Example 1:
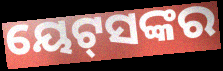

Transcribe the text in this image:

ୟେଟ୍‌ସଙ୍କର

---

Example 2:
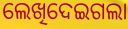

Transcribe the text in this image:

ଲେଖିଦେଇଗଲା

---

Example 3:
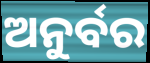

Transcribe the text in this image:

ଅନୁର୍ବର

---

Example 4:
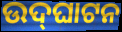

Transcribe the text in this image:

ଉଦ୍‌ଘାଟନ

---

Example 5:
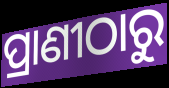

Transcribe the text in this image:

ପ୍ରାଣୀଠାରୁ